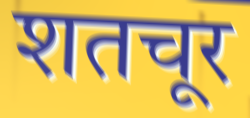
शतचूर